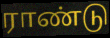
ராண்டு